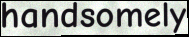
handsomely